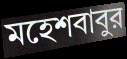
মহেশবাবুর